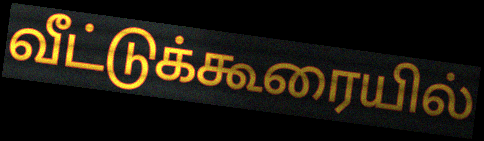
வீட்டுக்கூரையில்